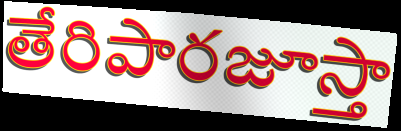
తేరిపారజూస్తా